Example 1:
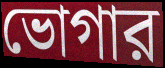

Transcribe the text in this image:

ভোগার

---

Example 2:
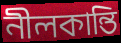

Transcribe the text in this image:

নীলকান্তি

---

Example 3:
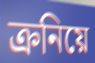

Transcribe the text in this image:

ক্রনিয়ে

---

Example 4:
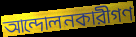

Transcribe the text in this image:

আন্দোলনকারীগণ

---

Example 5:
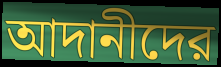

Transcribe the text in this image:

আদানীদের